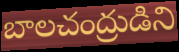
బాలచంద్రుడిని